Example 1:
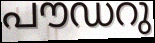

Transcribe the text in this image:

പൗഡറു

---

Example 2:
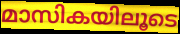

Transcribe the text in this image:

മാസികയിലൂടെ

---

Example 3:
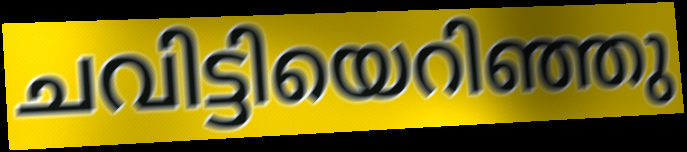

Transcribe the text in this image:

ചവിട്ടിയെറിഞ്ഞു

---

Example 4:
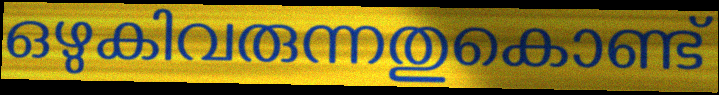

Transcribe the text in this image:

ഒഴുകിവരുന്നതുകൊണ്ട്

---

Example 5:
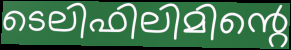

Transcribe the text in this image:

ടെലിഫിലിമിന്റെ